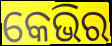
କେଭିର